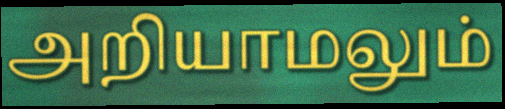
அறியாமலும்